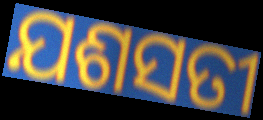
ଯଶସତୀ